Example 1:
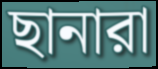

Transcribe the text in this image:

ছানারা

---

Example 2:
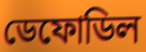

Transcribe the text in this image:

ডেফোডিল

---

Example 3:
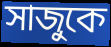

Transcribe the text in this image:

সাজুকে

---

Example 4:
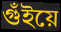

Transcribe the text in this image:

গুঁইয়ে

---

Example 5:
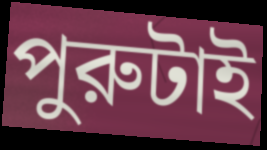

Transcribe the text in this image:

পুরুটাই